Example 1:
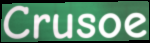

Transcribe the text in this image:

Crusoe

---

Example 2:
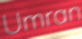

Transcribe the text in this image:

Umran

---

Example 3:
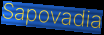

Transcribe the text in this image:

Sapovadia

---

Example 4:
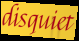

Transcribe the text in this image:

disquiet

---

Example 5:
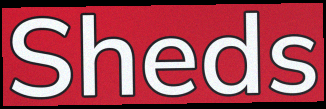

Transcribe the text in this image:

Sheds